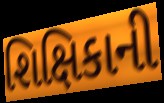
શિક્ષિકાની